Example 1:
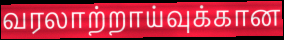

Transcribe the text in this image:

வரலாற்றாய்வுக்கான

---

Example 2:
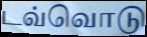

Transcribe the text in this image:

டவ்வொடு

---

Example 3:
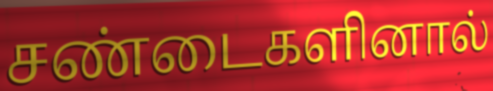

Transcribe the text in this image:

சண்டைகளினால்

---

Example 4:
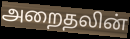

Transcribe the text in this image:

அறைதலின்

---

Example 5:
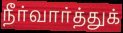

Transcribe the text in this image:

நீர்வார்த்துக்